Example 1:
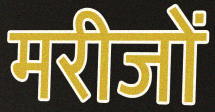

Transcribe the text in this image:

मरीजों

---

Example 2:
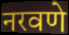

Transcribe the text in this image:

नरवणे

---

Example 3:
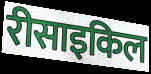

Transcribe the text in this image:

रीसाइकिल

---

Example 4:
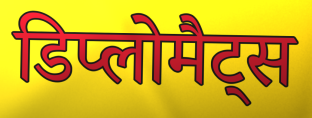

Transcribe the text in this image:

डिप्लोमैट्स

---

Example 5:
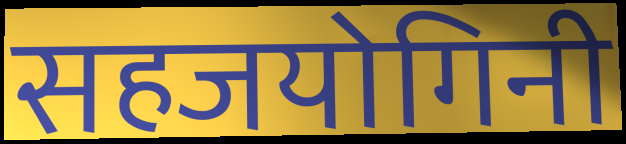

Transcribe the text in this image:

सहजयोगिनी